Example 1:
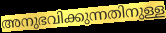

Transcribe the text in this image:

അനുഭവിക്കുന്നതിനുള്ള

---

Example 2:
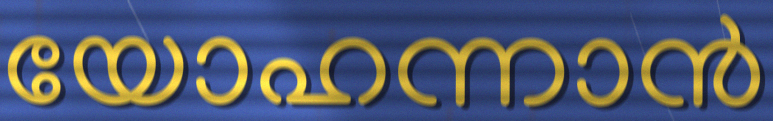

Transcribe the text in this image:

യോഹന്നാൻ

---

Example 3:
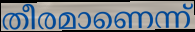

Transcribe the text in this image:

തീരമാണെന്ന്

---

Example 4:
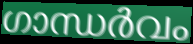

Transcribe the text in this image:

ഗാന്ധർവം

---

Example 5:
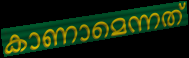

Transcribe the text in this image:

കാണാമെന്നത്